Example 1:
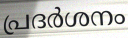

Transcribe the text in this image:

പ്രദർശനം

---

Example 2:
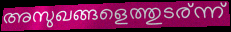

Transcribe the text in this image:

അസുഖങ്ങളെത്തുടര്ന്ന്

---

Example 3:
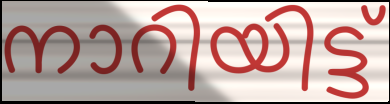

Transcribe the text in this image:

നാറിയിട്ട്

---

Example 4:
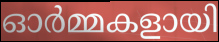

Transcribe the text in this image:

ഓർമ്മകളായി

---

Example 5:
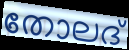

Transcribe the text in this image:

തോലദ്